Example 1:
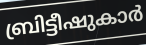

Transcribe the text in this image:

ബ്രിട്ടീഷുകാർ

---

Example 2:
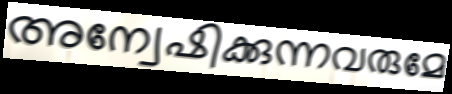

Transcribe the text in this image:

അന്വേഷിക്കുന്നവരുമേ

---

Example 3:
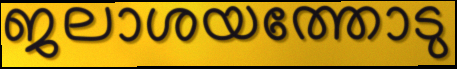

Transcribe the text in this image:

ജലാശയത്തോടു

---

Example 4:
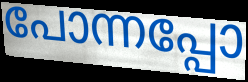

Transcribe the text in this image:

പോന്നപ്പോ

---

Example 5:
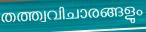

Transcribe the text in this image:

തത്ത്വവിചാരങ്ങളും